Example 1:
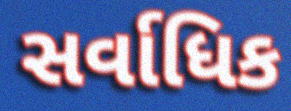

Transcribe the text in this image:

સર્વાધિક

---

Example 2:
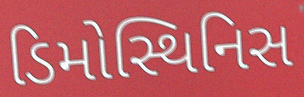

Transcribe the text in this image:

ડિમોસ્થિનિસ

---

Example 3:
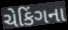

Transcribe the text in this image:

ચેકિંગના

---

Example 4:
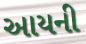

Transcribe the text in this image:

આયની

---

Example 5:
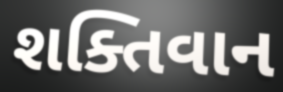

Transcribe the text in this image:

શક્તિવાન